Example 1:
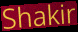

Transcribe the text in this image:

Shakir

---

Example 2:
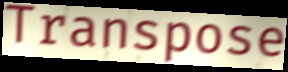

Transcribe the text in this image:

Transpose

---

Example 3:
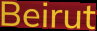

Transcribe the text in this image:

Beirut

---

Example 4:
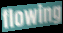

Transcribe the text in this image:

flowing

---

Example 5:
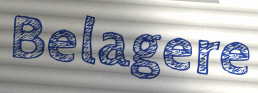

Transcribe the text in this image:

Belagere